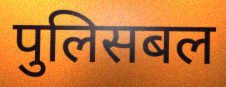
पुलिसबल